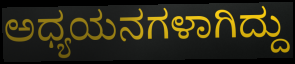
ಅಧ್ಯಯನಗಳಾಗಿದ್ದು